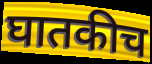
घातकीच